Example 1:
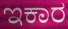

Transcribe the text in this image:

ಇಕಾರ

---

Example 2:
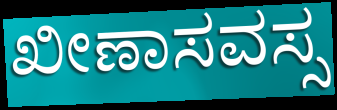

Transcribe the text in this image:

ಖೀಣಾಸವಸ್ಸ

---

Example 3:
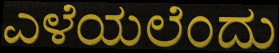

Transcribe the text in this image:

ಎಳೆಯಲೆಂದು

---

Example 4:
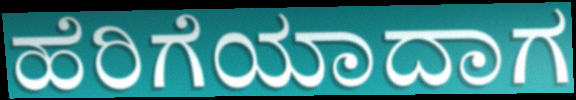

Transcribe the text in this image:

ಹೆರಿಗೆಯಾದಾಗ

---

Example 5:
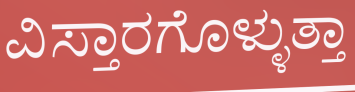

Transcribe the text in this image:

ವಿಸ್ತಾರಗೊಳ್ಳುತ್ತಾ